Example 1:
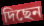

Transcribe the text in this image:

দিছেন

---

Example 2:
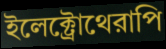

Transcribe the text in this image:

ইলেক্ট্রোথেরাপি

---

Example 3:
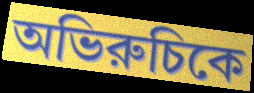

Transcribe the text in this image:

অভিরুচিকে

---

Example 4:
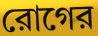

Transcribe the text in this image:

রোগের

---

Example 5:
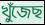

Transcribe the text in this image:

খুঁজেছ